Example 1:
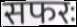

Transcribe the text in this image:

सफरः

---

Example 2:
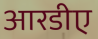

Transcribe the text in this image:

आरडीए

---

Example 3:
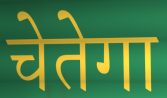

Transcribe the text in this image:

चेतेगा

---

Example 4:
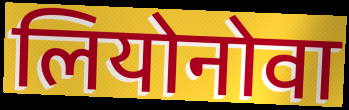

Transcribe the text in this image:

लियोनोवा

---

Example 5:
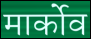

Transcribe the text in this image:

मार्कोव